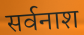
सर्वनाश